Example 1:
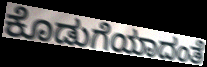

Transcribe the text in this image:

ಕೊಡುಗೆಯಾದಂತೆ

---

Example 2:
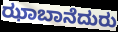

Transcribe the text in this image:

ಝಾಬಾನೆದುರು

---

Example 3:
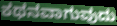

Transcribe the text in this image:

ಕಥನವಾಗುವುದು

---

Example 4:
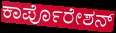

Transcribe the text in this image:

ಕಾರ್ಪೊರೇಶನ್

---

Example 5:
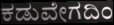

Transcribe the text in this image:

ಕಡುವೇಗದಿಂ